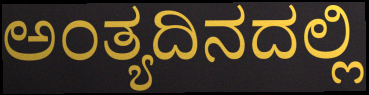
ಅಂತ್ಯದಿನದಲ್ಲಿ